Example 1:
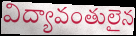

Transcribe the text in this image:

విద్యావంతులైన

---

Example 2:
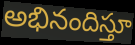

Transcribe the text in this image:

అభినందిస్తూ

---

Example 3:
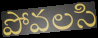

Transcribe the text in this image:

పోవలసి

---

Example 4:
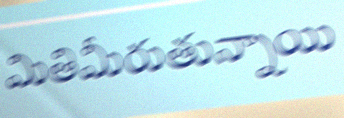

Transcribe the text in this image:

మితిమీరుతున్నాయి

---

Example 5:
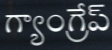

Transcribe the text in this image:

గ్యాంగ్రేప్